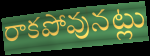
రాకపోవునట్లు